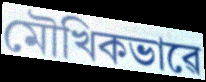
মৌখিকভাৱে